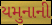
યમુનાની